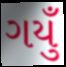
ગયુઁ